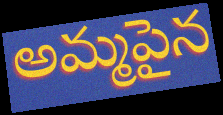
అమ్మపైన